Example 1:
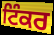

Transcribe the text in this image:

ਟਿੰਕਰ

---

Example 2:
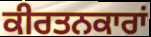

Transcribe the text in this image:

ਕੀਰਤਨਕਾਰਾਂ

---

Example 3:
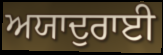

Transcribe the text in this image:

ਅਯਾਦੁਰਾਈ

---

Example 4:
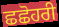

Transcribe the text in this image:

ਛਛੋਹਰੀ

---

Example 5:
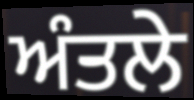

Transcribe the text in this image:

ਅੰਤਲੇ